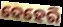
ଦେହେରି